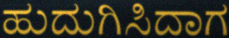
ಹುದುಗಿಸಿದಾಗ